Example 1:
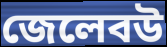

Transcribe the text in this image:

জেলেবউ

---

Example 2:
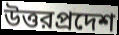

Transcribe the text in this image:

উত্তরপ্রদেশ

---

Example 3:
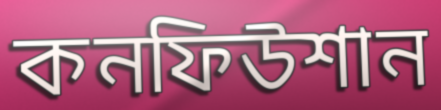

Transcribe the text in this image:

কনফিউশান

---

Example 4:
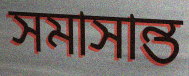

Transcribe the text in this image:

সমাসান্ত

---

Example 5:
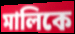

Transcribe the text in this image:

মালিকে